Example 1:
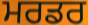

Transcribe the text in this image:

ਮਰਡਰ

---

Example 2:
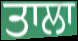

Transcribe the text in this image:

ਤਾਲਾ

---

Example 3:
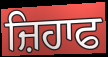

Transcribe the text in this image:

ਜ਼ਿਹਾਫ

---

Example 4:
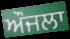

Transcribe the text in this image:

ਔਜਲਾ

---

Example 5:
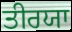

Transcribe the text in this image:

ਤੀਰਯਾ